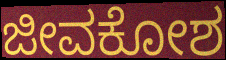
ಜೀವಕೋಶ